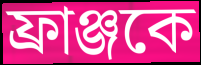
ফ্রাঞ্জকে